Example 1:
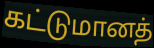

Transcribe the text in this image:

கட்டுமானத்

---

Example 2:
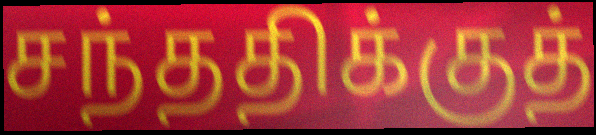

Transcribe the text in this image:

சந்ததிக்குத்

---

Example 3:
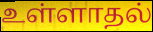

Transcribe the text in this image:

உள்ளாதல்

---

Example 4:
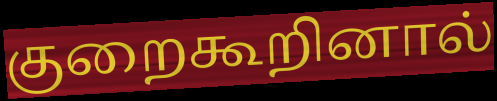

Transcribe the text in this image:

குறைகூறினால்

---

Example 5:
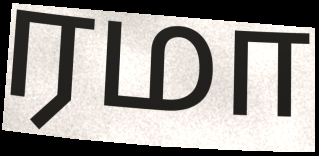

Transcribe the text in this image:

ரமா